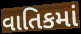
વાતિકમાં